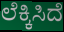
ಲೆಕ್ಕಿಸಿದೆ